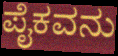
ಪೈಕವನು